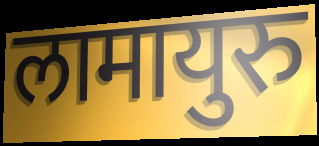
लामायुरु